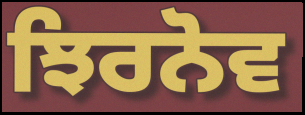
ਝਿਰਨੋਵ